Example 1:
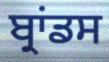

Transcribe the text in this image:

ਬ੍ਰਾਂਡਸ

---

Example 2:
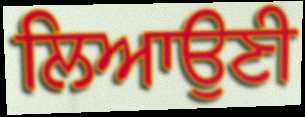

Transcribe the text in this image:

ਲਿਆਉਣੀ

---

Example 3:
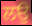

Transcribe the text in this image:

ਲਉ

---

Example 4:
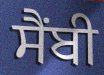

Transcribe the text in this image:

ਸੈਂਬੀ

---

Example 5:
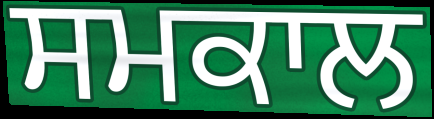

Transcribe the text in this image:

ਸਮਕਾਲ